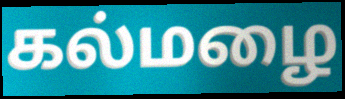
கல்மழை